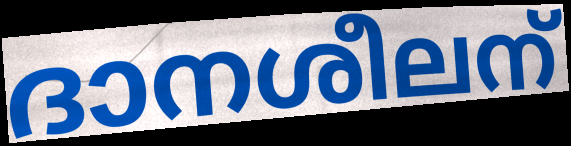
ദാനശീലന്